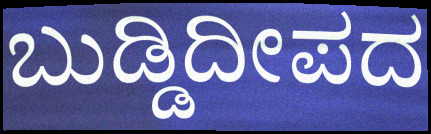
ಬುಡ್ಡಿದೀಪದ